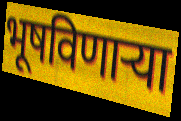
भूषविणार्‍या